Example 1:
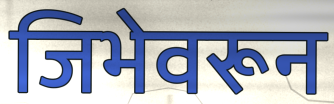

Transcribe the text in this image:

जिभेवरून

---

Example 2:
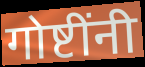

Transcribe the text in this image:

गोष्टींनी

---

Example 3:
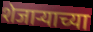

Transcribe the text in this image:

शेजाऱ्याच्या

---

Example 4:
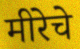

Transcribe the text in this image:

मीरेचे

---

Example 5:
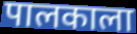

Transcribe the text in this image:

पालकाला